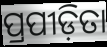
ପ୍ରପୀଡ଼ିତା